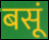
बसूं